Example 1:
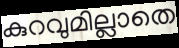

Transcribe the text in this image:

കുറവുമില്ലാതെ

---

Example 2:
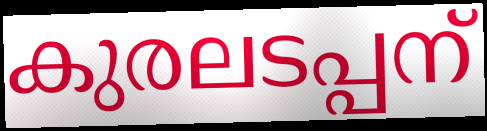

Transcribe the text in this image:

കുരലടപ്പന്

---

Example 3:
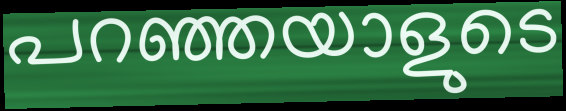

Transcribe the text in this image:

പറഞ്ഞയാളുടെ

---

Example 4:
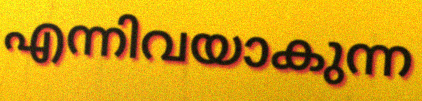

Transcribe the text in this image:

എന്നിവയാകുന്ന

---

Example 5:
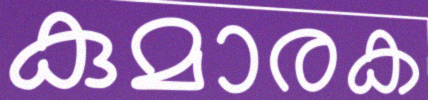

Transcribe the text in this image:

കുമാരക